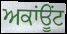
ਅਕਾਂਊਂਟ